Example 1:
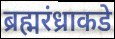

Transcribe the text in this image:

ब्रह्मरंध्राकडे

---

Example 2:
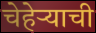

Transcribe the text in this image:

चेहेऱ्याची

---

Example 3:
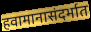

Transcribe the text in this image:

हवामानासंदर्भात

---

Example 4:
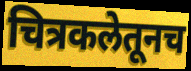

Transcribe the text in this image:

चित्रकलेतूनच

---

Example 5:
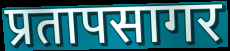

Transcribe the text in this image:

प्रतापसागर